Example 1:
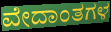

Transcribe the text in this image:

ವೇದಾಂತಗಳ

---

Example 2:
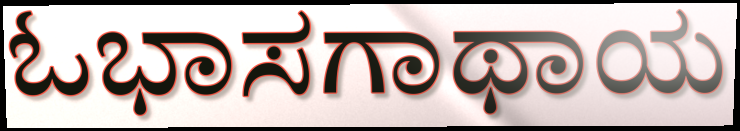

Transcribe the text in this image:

ಓಭಾಸಗಾಥಾಯ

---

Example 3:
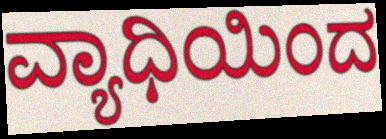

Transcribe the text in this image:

ವ್ಯಾಧಿಯಿಂದ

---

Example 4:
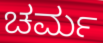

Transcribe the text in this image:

ಚರ್ಮ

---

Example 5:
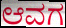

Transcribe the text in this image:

ಆವಗ